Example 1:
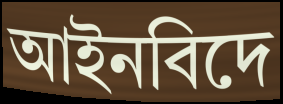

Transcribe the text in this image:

আইনবিদে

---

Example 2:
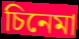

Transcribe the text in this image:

চিনেমা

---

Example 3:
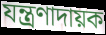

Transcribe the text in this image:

যন্ত্ৰণাদায়ক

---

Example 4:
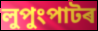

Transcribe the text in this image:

লুপুংপাটৰ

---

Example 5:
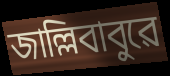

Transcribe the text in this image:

জাল্লিবাবুৱে